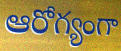
ఆరోగ్యంగా